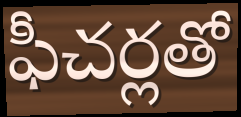
ఫీచర్లతో